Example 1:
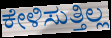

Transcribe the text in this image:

ಕೇಳಿಸುತ್ತಿಲ್ಲ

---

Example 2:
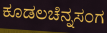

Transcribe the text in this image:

ಕೂಡಲಚೆನ್ನಸಂಗ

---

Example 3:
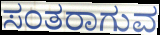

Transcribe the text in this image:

ಸಂತರಾಗುವ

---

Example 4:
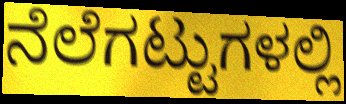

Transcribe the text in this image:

ನೆಲೆಗಟ್ಟುಗಳಲ್ಲಿ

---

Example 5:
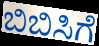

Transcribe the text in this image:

ಬಿಬಿಸಿಗೆ